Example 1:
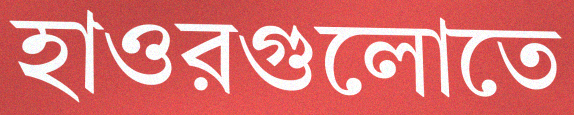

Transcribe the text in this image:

হাওরগুলোতে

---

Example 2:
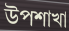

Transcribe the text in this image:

উপশাখা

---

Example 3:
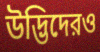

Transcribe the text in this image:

উদ্ভিদেরও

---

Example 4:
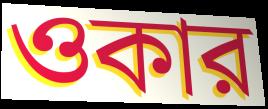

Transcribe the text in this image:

ওকার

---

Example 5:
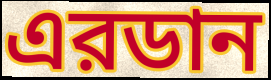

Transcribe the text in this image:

এরডান